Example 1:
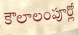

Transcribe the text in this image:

కౌలాలంపూర్లో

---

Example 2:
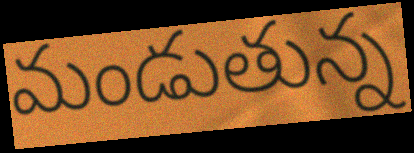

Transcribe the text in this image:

మండుతున్న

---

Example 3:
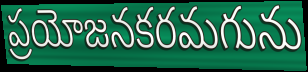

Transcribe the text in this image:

ప్రయోజనకరమగును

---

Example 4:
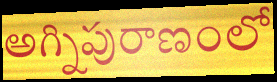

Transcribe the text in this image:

అగ్నిపురాణంలో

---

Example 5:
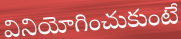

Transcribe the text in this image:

వినియోగించుకుంటే